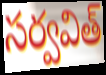
సర్వవిత్